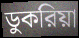
ডুকরিয়া